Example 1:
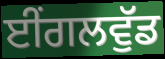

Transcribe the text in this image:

ਈਂਗਲਵੁੱਡ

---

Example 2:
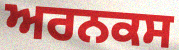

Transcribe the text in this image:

ਅਰਨਕਸ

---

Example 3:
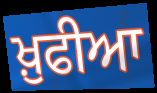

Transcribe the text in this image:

ਖ਼ੁਫੀਆ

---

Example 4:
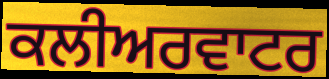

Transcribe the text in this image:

ਕਲੀਅਰਵਾਟਰ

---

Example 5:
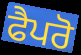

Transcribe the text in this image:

ਫੈਪਰੋ